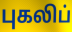
புகலிப்